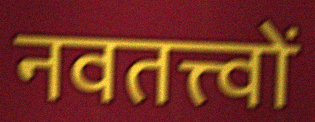
नवतत्त्वों